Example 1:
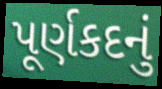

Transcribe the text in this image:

પૂર્ણકદનું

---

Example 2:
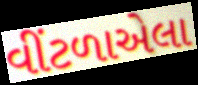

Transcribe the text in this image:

વીંટળાએલા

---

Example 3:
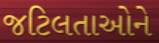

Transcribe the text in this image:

જટિલતાઓને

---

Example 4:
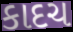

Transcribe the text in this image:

કાદચ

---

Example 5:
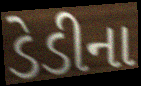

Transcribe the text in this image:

ડેડીના